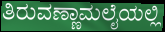
ತಿರುವಣ್ಣಾಮಲೈಯಲ್ಲಿ